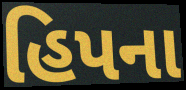
હિપના